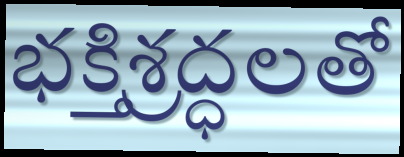
భక్తిశ్రద్ధలతో